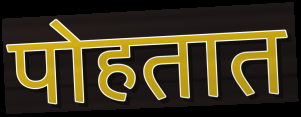
पोहतात